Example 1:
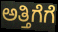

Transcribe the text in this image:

ಅತ್ತಿಗೆಗೆ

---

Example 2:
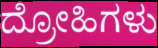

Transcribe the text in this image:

ದ್ರೋಹಿಗಳು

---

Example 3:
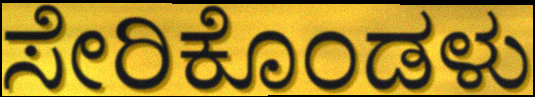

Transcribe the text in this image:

ಸೇರಿಕೊಂಡಳು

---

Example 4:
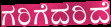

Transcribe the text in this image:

ಗರಿಗೆದರಿದೆ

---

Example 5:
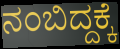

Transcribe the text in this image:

ನಂಬಿದ್ದಕ್ಕೆ